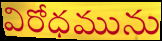
విరోధమును